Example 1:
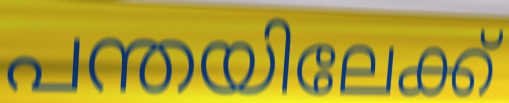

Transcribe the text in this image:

പന്തയിലേക്ക്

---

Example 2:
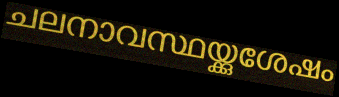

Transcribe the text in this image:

ചലനാവസ്ഥയ്ക്കുശേഷം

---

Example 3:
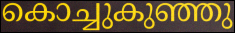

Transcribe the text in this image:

കൊച്ചുകുഞ്ഞു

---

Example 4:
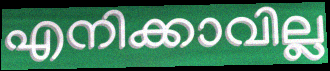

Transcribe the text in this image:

എനിക്കാവില്ല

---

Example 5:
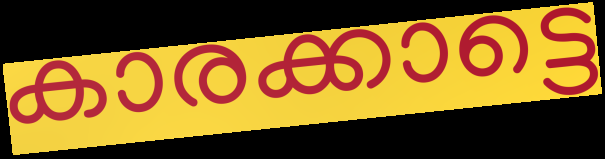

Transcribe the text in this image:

കാരക്കാട്ടെ